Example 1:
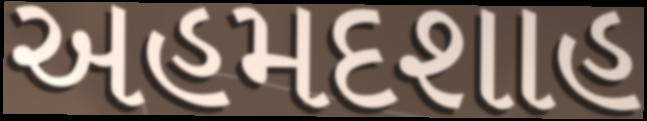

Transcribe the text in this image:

અહમદશાહ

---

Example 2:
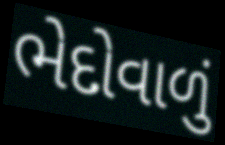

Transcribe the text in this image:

ભેદોવાળું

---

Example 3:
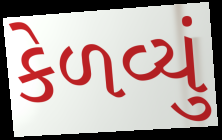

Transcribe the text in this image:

કેળવ્યું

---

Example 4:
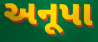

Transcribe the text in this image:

અનૂપા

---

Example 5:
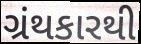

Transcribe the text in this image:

ગ્રંથકારથી